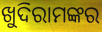
ଖୁଦିରାମଙ୍କର